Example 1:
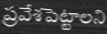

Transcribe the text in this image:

ప్రవేశపెట్టాలని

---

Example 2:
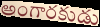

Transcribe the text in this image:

అంగారకుడు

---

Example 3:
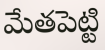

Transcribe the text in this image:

మేతపెట్టి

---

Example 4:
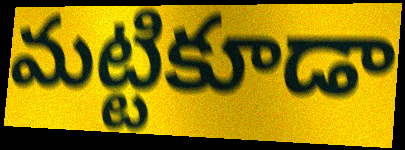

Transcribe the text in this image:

మట్టికూడా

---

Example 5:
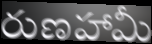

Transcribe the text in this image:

రుణహామీ